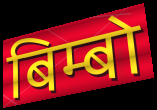
बिम्बो